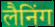
लैनिंग